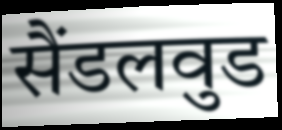
सैंडलवुड